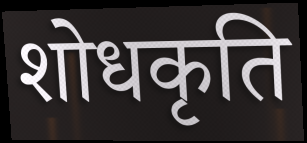
शोधकृति